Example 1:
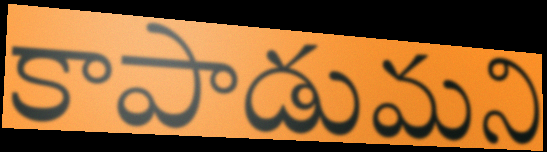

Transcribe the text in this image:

కాపాడుమని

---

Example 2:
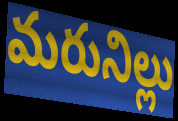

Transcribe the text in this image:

మరునిల్లు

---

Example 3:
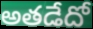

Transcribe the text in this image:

అతడేదో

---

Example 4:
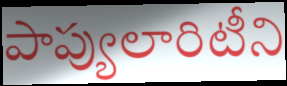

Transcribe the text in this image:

పాప్యులారిటీని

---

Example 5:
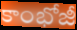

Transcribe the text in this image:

కాంభోజీ